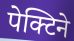
पेक्टिने